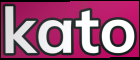
kato